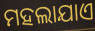
ମହଲାଯାଏ